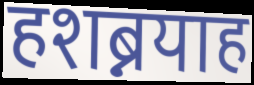
हशब्नयाह